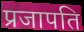
प्रजापति